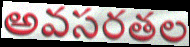
అవసరతల